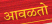
आवळतो